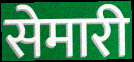
सेमारी